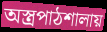
অস্ত্রপাঠশালায়